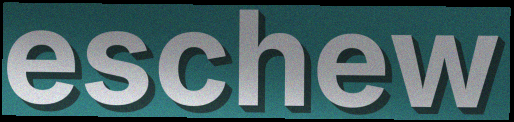
eschew